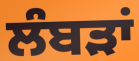
ਲੰਬੜਾਂ